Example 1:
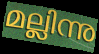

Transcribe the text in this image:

മല്ലിന്നു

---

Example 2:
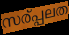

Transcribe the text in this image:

സര്പ്പലത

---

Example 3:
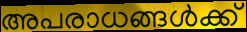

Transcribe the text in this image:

അപരാധങ്ങൾക്ക്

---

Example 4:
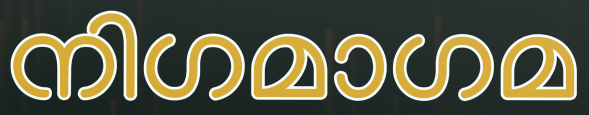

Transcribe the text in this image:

നിഗമാഗമ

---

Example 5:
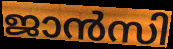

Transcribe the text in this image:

ജാൻസി